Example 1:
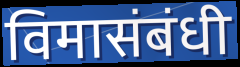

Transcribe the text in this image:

विमासंबंधी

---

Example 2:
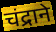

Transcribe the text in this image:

चंद्राने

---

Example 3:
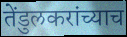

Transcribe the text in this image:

तेंडुलकरांच्याच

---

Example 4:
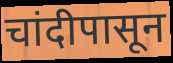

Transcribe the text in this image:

चांदीपासून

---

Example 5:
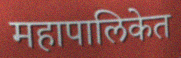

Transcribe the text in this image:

महापालिकेत